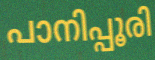
പാനിപ്പൂരി